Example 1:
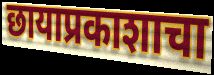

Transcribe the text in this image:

छायाप्रकाशाचा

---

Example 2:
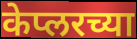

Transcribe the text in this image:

केप्लरच्या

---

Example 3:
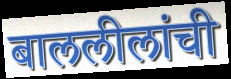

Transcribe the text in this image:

बाललीलांची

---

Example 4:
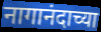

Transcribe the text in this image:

नागानंदाच्या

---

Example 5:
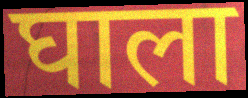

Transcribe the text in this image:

घाला